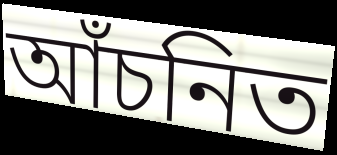
আঁচনিত